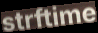
strftime